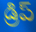
డ్రిప్